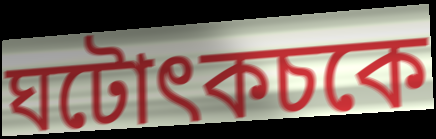
ঘটোৎকচকে